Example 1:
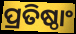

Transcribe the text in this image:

ପ୍ରତିଷ୍ଠାଂ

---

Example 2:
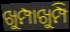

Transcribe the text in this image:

ଖୁମ୍ପାଖୁମ୍ପି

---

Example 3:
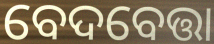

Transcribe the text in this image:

ବେଦବେତ୍ତା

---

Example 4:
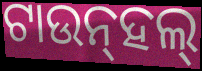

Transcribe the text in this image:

ଟାଉନ୍‌ହଲ୍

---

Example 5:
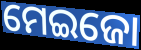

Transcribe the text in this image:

ମେଇଜୋ